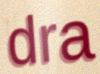
dra